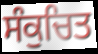
ਸੰਕੁਚਿਤ